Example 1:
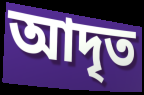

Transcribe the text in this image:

আদৃত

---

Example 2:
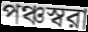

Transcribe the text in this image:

পঞ্চস্বরা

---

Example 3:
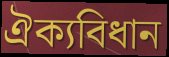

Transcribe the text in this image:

ঐক্যবিধান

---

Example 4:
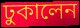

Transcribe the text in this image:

ঢুকালেন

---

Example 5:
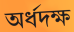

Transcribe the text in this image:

অর্ধদক্ষ